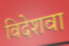
विदेशवा